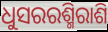
ଧୁସରରଶ୍ମିରାଶି